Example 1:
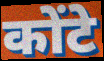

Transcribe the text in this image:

कोंटे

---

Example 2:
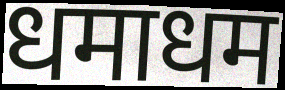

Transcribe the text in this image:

धमाधम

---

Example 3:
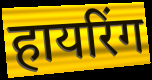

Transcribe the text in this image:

हायरिंग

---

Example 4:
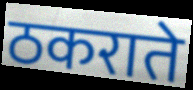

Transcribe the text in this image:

ठकराते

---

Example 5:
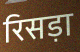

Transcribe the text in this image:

रिसड़ा